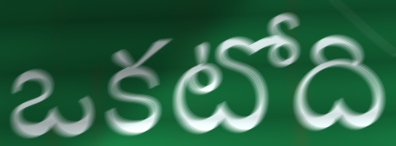
ఒకటోది